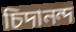
চিদানন্দ